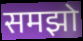
समझो